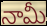
నామీ